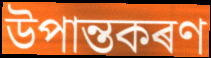
উপান্তকৰণ